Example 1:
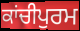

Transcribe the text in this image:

ਕਾਂਚੀਪੁਰਮ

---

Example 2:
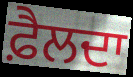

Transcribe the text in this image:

ਫ਼ੈਲਦਾ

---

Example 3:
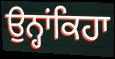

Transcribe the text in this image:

ਉਨ੍ਹਾਂਕਿਹਾ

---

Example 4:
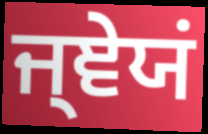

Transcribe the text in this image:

ਜ੍ਞੇਯਂ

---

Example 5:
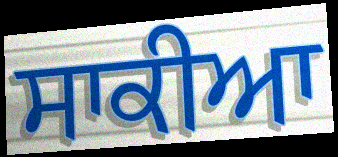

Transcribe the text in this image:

ਸਾਕੀਆ